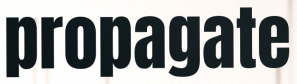
propagate